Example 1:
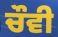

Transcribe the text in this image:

ਚੌਵੀ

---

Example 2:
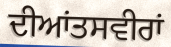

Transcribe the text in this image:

ਦੀਆਂਤਸਵੀਰਾਂ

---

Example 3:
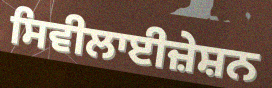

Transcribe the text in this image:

ਸਿਵੀਲਾਈਜ਼ੇਸ਼ਨ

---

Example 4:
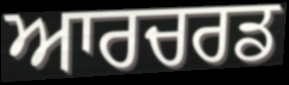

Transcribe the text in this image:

ਆਰਚਰਡ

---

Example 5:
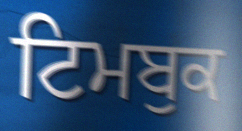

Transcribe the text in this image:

ਟਿਮਬੁਕ